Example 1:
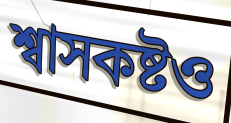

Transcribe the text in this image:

শ্বাসকষ্টও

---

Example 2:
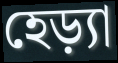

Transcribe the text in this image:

হেড়্যা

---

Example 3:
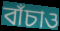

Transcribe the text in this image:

বাঁচাও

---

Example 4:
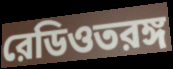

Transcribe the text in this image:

রেডিওতরঙ্গ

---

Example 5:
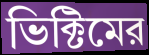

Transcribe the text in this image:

ভিক্টিমের